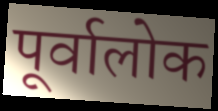
पूर्वालोक